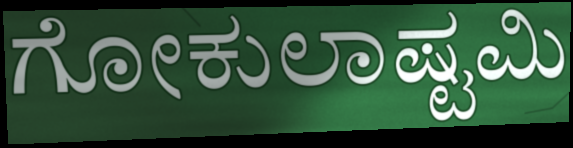
ಗೋಕುಲಾಷ್ಟಮಿ